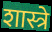
शास्त्रे